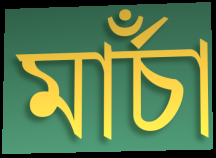
মার্চাঁ